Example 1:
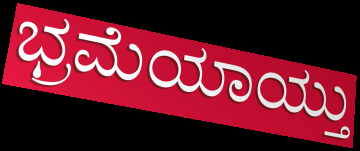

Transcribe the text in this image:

ಭ್ರಮೆಯಾಯ್ತು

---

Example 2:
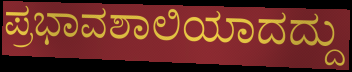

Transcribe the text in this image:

ಪ್ರಭಾವಶಾಲಿಯಾದದ್ದು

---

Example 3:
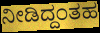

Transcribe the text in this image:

ನೀಡಿದ್ದಂತಹ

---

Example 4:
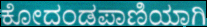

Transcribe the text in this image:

ಕೋದಂಡಪಾಣಿಯಾಗಿ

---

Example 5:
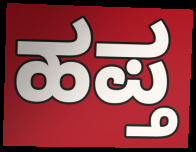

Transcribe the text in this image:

ಹಪ್ತ